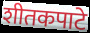
शीतकपाटे